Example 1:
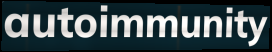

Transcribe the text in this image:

autoimmunity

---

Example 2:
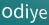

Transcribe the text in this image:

odiye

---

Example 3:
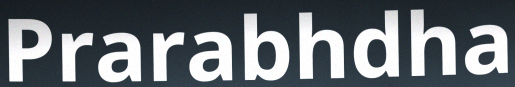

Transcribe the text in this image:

Prarabhdha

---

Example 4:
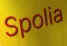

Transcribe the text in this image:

Spolia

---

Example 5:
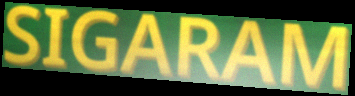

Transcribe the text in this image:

SIGARAM